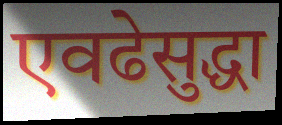
एवढेसुद्धा